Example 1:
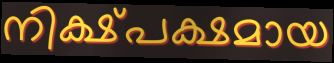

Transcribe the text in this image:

നിക്ഷ്പക്ഷമായ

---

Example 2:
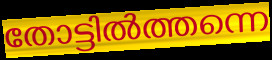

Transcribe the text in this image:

തോട്ടിൽത്തന്നെ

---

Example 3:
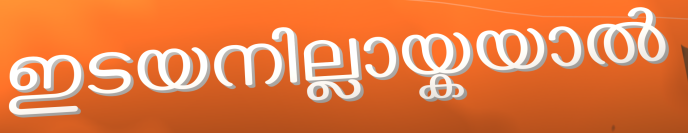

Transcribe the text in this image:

ഇടയനില്ലായ്കയാൽ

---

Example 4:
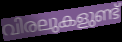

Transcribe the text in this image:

വിരലുകളുണ്ട്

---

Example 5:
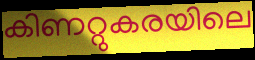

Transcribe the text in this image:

കിണറ്റുകരയിലെ